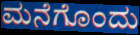
ಮನೆಗೊಂದು